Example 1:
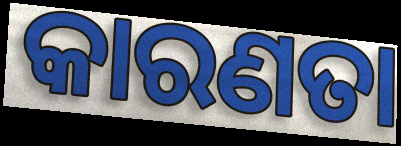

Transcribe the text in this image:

କାରଣତା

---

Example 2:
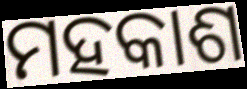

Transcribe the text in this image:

ମହକାଶ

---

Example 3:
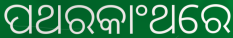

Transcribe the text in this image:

ପଥରକାଂଥରେ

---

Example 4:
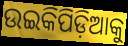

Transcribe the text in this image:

ଉଇକିପିଡ଼ିଆକୁ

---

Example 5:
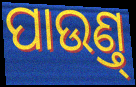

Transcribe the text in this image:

ପାଉଣ୍ତ୍